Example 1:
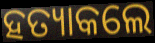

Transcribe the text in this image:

ହତ୍ୟାକଲେ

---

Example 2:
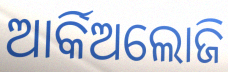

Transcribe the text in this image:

ଆର୍କିଅଲୋଜି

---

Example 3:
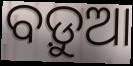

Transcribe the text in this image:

ବଡ଼ୁଆ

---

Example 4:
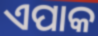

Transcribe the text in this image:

ଏପାକ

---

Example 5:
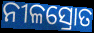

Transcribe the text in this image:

ନୀଳସ୍ରୋତ